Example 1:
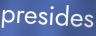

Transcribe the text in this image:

presides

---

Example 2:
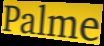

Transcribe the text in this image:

Palme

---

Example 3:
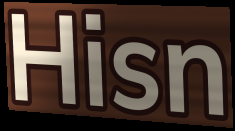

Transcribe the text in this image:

Hisn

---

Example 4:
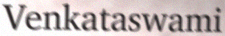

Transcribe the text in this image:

Venkataswami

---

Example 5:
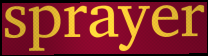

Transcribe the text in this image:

sprayer